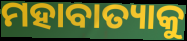
ମହାବାତ୍ୟାକୁ